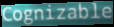
Cognizable